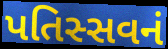
પતિસ્સવનં